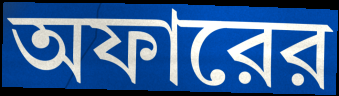
অফারের